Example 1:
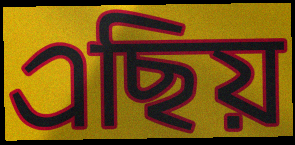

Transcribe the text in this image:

এছিয়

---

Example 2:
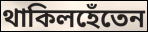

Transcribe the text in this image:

থাকিলহেঁতেন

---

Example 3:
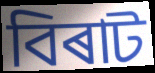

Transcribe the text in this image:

বিৰাট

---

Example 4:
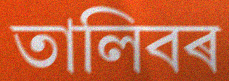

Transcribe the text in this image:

তালিবৰ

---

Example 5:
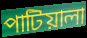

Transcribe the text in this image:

পাটিয়ালা